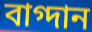
বাগ্দান